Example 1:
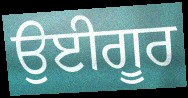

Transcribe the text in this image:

ਉਈਗੂਰ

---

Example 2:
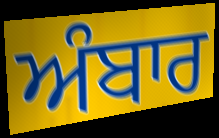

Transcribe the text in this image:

ਅੰਬਾਰ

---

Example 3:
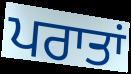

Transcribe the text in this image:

ਪਰਾਤਾਂ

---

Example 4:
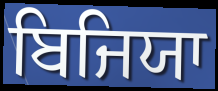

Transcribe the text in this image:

ਬਿਜਿਯਾ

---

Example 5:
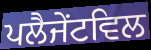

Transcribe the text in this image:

ਪਲੈਜੇਂਟਵਿਲ